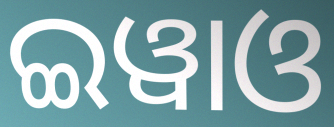
ଇୱାଓ